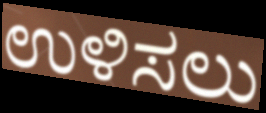
ಉಳಿಸಲು